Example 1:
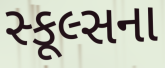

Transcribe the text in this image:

સ્કૂલ્સના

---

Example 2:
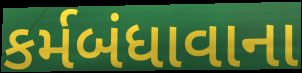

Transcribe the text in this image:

કર્મબંધાવાના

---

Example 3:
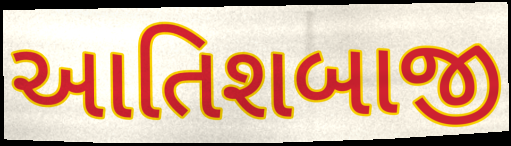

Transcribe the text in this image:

આતિશબાજી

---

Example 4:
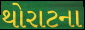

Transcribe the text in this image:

થોરાટના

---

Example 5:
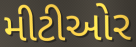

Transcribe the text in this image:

મીટીઓર